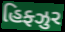
હિફ્ઝુર